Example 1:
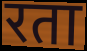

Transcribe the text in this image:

रता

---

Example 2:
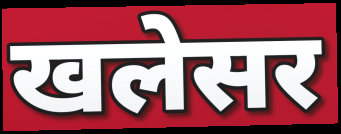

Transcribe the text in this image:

खलेसर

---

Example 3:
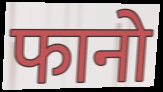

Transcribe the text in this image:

फानो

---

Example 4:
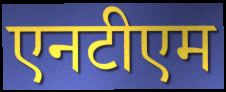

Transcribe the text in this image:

एनटीएम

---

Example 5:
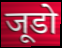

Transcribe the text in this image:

जूडो